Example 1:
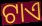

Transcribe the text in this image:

ଟାଏ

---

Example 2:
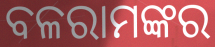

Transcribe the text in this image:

ବଳରାମଙ୍କର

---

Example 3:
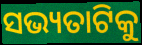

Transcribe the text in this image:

ସଭ୍ୟତାଟିକୁ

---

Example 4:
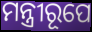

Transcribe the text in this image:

ମନ୍ତ୍ରୀରୂପେ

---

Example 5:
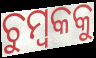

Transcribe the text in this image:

ଚୁମ୍ବକକୁ